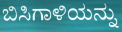
ಬಿಸಿಗಾಳಿಯನ್ನು